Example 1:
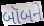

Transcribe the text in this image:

બૉબને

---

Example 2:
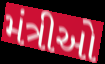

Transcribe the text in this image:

મંત્રીઓ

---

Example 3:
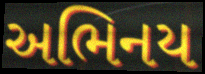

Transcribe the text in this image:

અભિનય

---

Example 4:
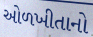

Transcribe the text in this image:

ઓળખીતાનો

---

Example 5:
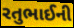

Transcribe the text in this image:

રતુભાઈની